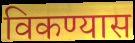
विकण्यास